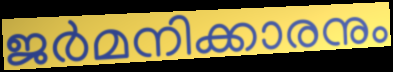
ജർമനിക്കാരനും